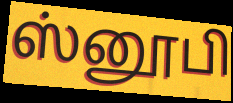
ஸ்னூபி